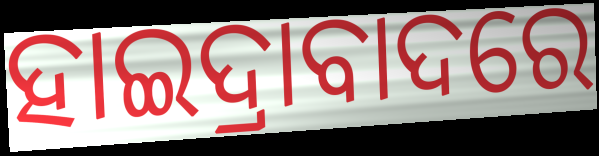
ହାଇଦ୍ରାବାଦରେ